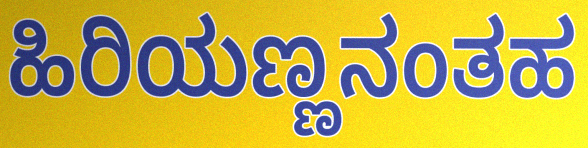
ಹಿರಿಯಣ್ಣನಂತಹ